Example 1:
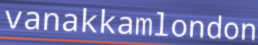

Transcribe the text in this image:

vanakkamlondon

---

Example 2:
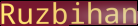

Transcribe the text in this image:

Ruzbihan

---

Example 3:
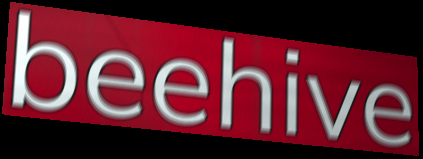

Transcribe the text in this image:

beehive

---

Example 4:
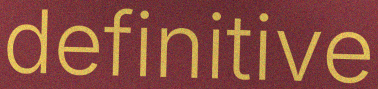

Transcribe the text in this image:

definitive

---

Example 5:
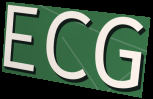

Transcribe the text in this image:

ECG